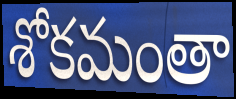
శోకమంతా